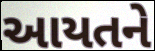
આયતને